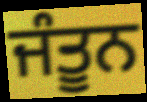
ਜੰਤੂਨ